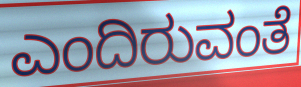
ಎಂದಿರುವಂತೆ